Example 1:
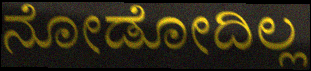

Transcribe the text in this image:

ನೋಡೋದಿಲ್ಲ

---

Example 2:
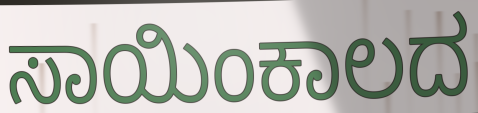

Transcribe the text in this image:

ಸಾಯಿಂಕಾಲದ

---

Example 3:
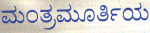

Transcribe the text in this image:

ಮಂತ್ರಮೂರ್ತಿಯ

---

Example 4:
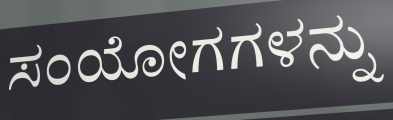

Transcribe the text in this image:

ಸಂಯೋಗಗಳನ್ನು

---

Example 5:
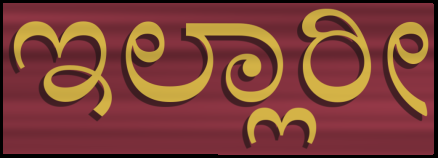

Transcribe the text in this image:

ಇಲ್ಲಾರೀ